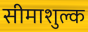
सीमाशुल्क